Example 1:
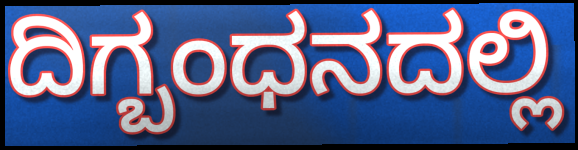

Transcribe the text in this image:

ದಿಗ್ಬಂಧನದಲ್ಲಿ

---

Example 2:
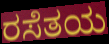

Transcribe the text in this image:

ರಸೆತಯ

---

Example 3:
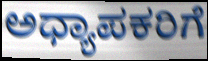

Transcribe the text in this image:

ಅಧ್ಯಾಪಕರಿಗೆ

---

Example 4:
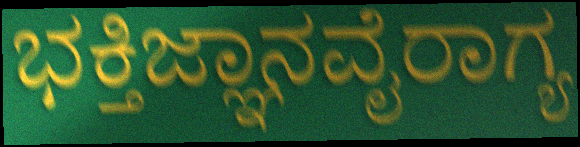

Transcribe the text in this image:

ಭಕ್ತಿಜ್ಞಾನವೈರಾಗ್ಯ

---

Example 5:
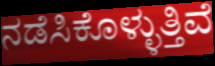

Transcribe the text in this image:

ನಡೆಸಿಕೊಳ್ಳುತ್ತಿವೆ